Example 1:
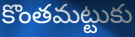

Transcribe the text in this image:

కొంతమట్టుకు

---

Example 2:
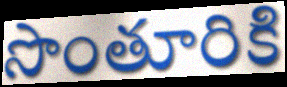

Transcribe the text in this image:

సొంతూరికి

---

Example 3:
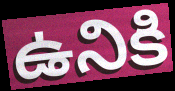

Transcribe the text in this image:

ఉనికి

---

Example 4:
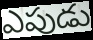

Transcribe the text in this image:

ఎపుడు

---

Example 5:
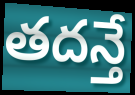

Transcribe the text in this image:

తదన్తే